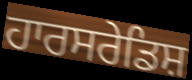
ਹਾਰਸਰੇਡਿਸ਼